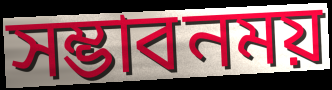
সম্ভাবনময়